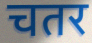
चतर